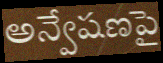
అన్వేషణపై